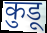
कुडू